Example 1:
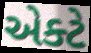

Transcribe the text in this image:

એક્ટે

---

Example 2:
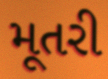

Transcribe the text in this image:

મૂતરી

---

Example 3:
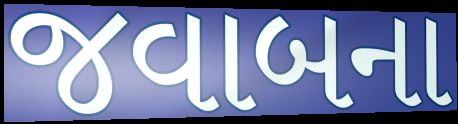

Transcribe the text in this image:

જવાબના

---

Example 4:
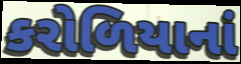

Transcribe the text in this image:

કરોળિયાનાં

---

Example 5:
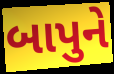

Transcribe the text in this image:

બાપુને